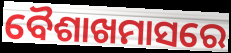
ବୈଶାଖମାସରେ